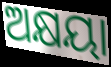
ଅକ୍ଷୟା